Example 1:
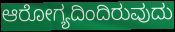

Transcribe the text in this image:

ಆರೋಗ್ಯದಿಂದಿರುವುದು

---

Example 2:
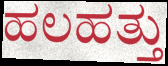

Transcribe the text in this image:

ಹಲಹತ್ತು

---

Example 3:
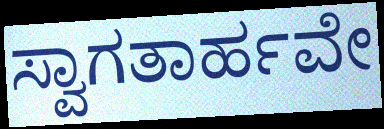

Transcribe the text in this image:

ಸ್ವಾಗತಾರ್ಹವೇ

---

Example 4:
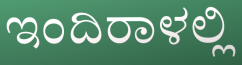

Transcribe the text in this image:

ಇಂದಿರಾಳಲ್ಲಿ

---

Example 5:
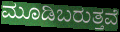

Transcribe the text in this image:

ಮೂಡಿಬರುತ್ತವೆ